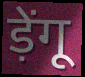
ड़ेंगू